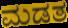
ಮಡತ